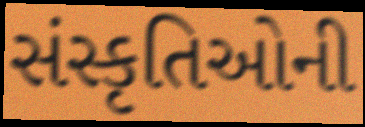
સંસ્કૃતિઓની